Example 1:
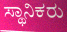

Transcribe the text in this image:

ಸ್ಥಾನಿಕರು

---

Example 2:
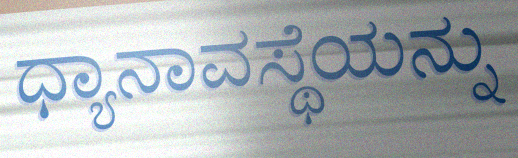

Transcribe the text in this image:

ಧ್ಯಾನಾವಸ್ಥೆಯನ್ನು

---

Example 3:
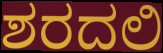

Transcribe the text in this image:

ಶರದಲಿ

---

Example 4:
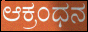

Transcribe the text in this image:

ಆಕ್ರಂಧನ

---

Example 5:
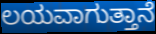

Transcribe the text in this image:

ಲಯವಾಗುತ್ತಾನೆ